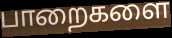
பாறைகளை